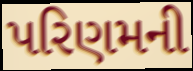
પરિણમની